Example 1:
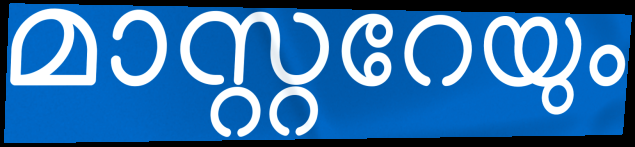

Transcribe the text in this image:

മാസ്റ്ററേയും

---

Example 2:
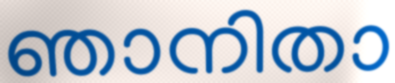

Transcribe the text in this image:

ഞാനിതാ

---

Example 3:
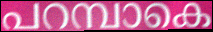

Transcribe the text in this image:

പറമ്പാകെ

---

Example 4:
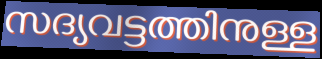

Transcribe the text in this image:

സദ്യവട്ടത്തിനുള്ള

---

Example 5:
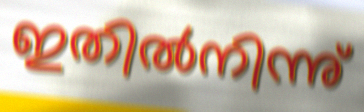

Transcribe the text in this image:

ഇതിൽനിന്നു്